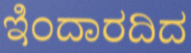
ಇಿಂದಾರದಿದ